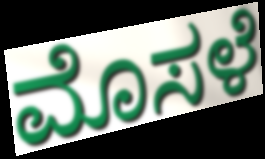
ಮೊಸಳೆ